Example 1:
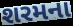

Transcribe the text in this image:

શરમના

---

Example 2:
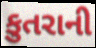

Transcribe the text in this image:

કુતરાની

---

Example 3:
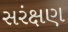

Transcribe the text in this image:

સરંક્ષણ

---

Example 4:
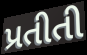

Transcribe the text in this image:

પ્રતીતી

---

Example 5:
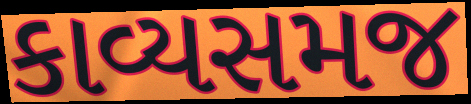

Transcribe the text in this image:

કાવ્યસમજ